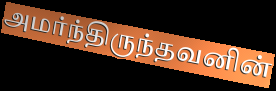
அமர்ந்திருந்தவனின்